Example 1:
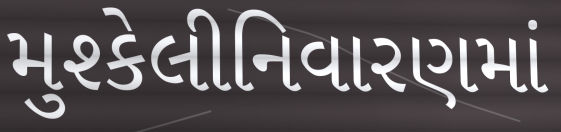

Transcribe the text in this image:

મુશ્કેલીનિવારણમાં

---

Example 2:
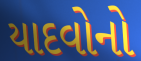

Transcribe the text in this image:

યાદવોનો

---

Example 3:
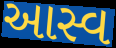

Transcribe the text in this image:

આસ્વ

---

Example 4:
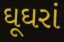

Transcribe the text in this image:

ઘૂઘરાં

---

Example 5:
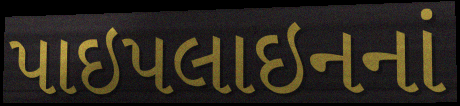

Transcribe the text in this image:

પાઇપલાઇનનાં